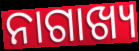
ନାଗାଖ୍ୟ